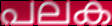
പലക